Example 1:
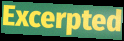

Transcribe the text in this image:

Excerpted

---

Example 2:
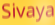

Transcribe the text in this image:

Sivaya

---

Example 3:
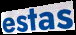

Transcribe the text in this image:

estas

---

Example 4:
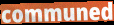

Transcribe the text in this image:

communed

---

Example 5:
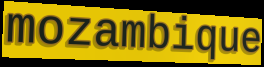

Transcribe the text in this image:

mozambique